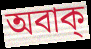
অবাক্